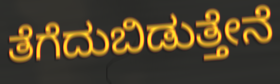
ತೆಗೆದುಬಿಡುತ್ತೇನೆ